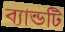
ব্যান্ডটি